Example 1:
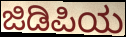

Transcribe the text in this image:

ಜಿಡಿಪಿಯ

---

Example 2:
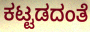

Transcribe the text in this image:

ಕಟ್ಟಡದಂತೆ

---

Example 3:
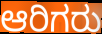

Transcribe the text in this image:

ಆರಿಗರು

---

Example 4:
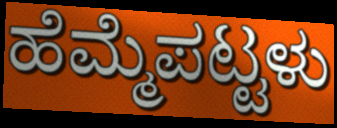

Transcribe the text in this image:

ಹೆಮ್ಮೆಪಟ್ಟಳು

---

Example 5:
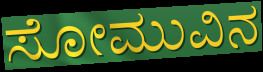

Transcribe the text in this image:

ಸೋಮುವಿನ